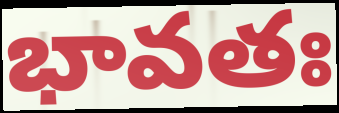
భావతః